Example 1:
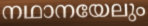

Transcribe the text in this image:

നഥാനയേലും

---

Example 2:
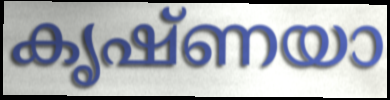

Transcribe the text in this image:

കൃഷ്ണയാ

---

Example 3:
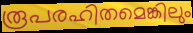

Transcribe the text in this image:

രൂപരഹിതമെങ്കിലും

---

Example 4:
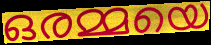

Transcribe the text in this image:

ഒരമ്മയെ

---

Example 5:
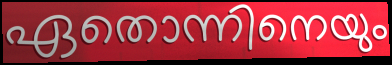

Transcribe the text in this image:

ഏതൊന്നിനെയും